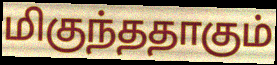
மிகுந்ததாகும்